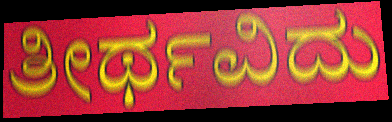
ತೀರ್ಥವಿದು